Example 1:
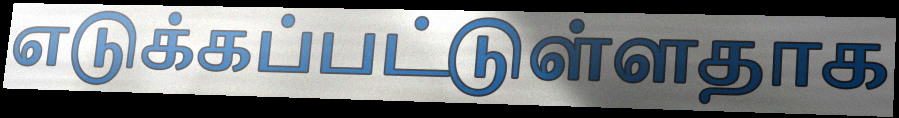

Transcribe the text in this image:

எடுக்கப்பட்டுள்ளதாக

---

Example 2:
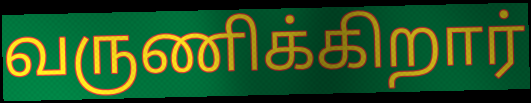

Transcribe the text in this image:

வருணிக்கிறார்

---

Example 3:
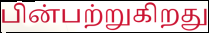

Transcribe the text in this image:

பின்பற்றுகிறது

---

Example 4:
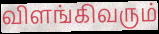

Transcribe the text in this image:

விளங்கிவரும்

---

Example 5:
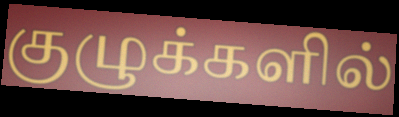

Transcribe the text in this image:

குழுக்களில்